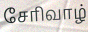
சேரிவாழ்